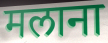
मलाना